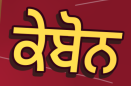
ਕੇਬੋਨ